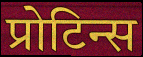
प्रोटिन्स